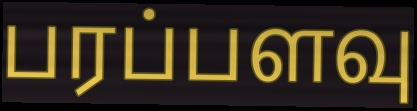
பரப்பளவு